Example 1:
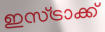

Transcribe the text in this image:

ഇസ്ട്രാക്ക്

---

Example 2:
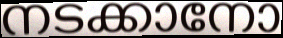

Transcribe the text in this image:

നടക്കാനോ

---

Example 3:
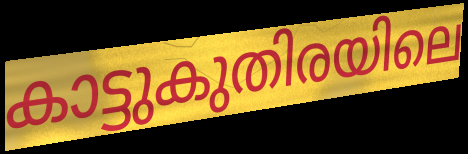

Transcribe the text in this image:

കാട്ടുകുതിരയിലെ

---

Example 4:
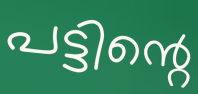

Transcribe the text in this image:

പട്ടിന്റെ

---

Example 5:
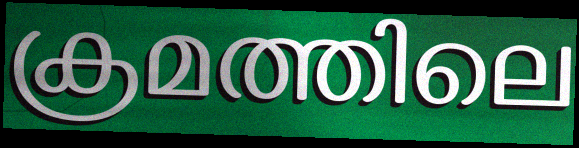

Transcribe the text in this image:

ക്രമത്തിലെ